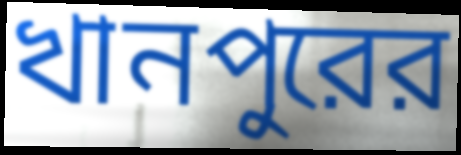
খানপুরের